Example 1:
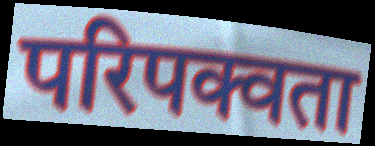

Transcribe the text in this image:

परिपक्वता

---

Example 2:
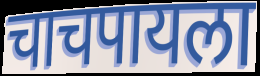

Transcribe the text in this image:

चाचपायला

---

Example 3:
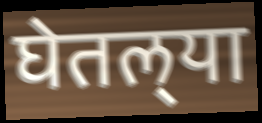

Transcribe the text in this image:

घेतल्या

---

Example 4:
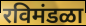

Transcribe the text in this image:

रविमंडळा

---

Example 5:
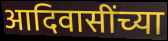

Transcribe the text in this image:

आदिवासींच्या